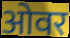
ओवर